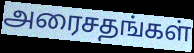
அரைசதங்கள்